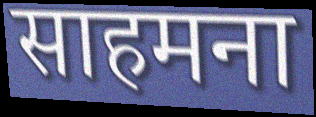
साहमना